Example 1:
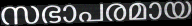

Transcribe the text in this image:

സഭാപരമായ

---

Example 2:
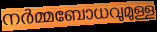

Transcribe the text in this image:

നർമ്മബോധവുമുള്ള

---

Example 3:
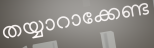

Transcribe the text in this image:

തയ്യാറാക്കേണ്ട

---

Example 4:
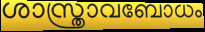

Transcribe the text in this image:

ശാസ്ത്രാവബോധം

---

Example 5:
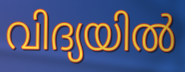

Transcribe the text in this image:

വിദ്യയിൽ